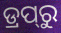
ଡ୍ରପ୍‍ରୁ